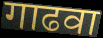
गाढवा